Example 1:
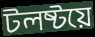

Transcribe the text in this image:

টলষ্টয়ে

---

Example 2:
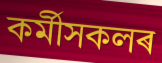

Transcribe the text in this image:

কৰ্মীসকলৰ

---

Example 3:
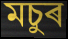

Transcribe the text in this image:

মচুৰ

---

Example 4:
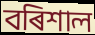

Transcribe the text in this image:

বৰিশাল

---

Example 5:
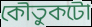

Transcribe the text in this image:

কৌতুকটো